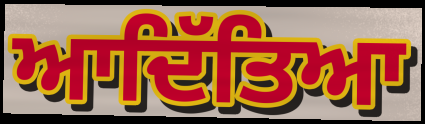
ਆਦਿੱਤਿਆ